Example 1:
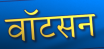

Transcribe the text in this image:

वॉटसन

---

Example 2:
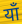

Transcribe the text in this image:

याँ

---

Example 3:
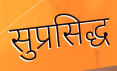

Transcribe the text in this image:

सुप्रसिद्ध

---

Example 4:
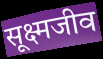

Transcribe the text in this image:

सूक्ष्मजीव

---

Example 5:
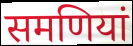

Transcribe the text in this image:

समणियां